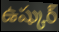
ఉష్కుర్